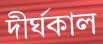
দীর্ঘকাল